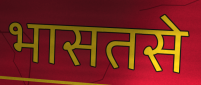
भासतसे